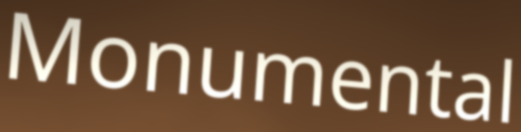
Monumental